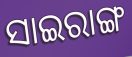
ସାଇରାଙ୍ଗ